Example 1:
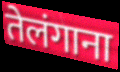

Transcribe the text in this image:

तेलंगाना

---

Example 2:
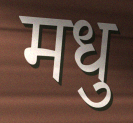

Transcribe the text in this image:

मधु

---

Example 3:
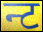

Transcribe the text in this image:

न्ट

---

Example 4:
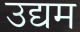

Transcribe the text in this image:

उद्यम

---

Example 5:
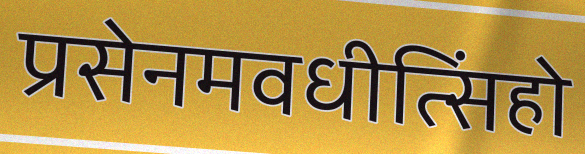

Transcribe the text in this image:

प्रसेनमवधीत्सिंहो